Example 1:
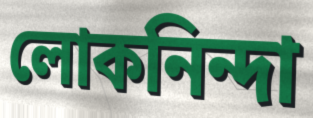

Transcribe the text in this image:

লোকনিন্দা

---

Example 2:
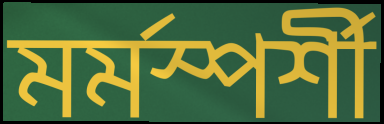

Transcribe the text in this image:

মর্মস্পর্শী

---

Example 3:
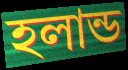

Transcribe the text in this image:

হলান্ড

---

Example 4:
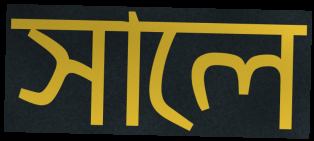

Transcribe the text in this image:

সালে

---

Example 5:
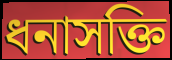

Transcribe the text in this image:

ধনাসক্তি